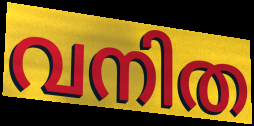
വനിത